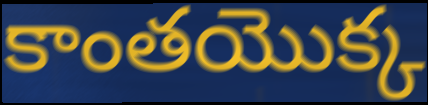
కాంతయొక్క